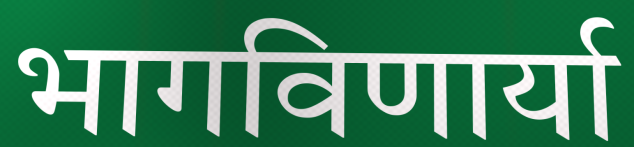
भागविणार्या